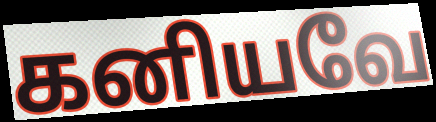
கனியவே